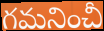
గమనించీ